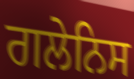
ਗਲੇਨਿਸ